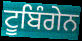
ਟੂਬਿੰਗੇਨ